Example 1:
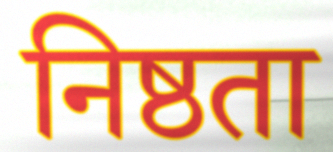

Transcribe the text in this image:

निष्ठता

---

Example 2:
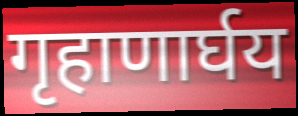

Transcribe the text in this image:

गृहाणार्घय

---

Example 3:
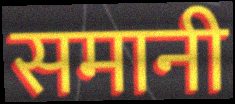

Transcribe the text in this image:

समानी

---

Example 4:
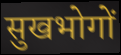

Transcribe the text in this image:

सुखभोगों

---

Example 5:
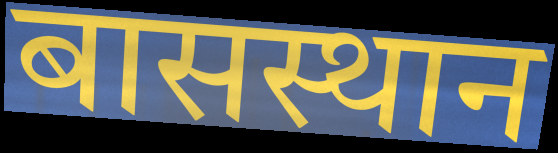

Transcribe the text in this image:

बासस्थान